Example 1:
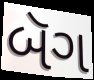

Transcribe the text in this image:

બૅગ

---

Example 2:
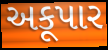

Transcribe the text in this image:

અકૂપાર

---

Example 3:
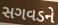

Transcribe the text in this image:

સગવડને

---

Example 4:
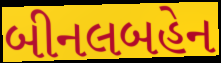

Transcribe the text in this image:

બીનલબહેન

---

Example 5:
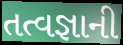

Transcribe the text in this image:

તત્વજ્ઞાની